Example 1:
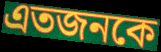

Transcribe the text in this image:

এতজনকে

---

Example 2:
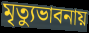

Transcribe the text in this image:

মৃত্যুভাবনায়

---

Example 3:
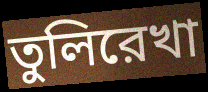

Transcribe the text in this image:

তুলিরেখা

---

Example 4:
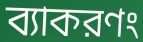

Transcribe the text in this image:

ব্যাকরণং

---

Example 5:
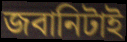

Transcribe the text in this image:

জবানিটাই